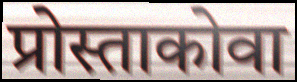
प्रोस्ताकोवा